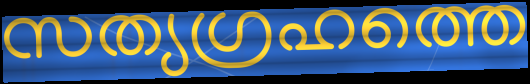
സത്യഗ്രഹത്തെ